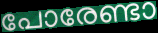
പോരേണ്ടാ